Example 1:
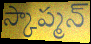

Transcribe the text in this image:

స్కాప్మన్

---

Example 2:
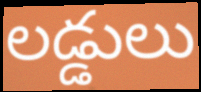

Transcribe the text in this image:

లడ్డులు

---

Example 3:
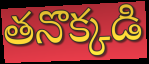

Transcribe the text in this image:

తనొక్కడి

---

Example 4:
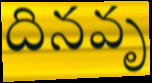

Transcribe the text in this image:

దినవృ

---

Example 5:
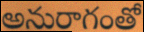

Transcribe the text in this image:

అనురాగంతో